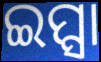
ଇପ୍ସା